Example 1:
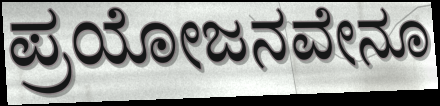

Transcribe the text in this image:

ಪ್ರಯೋಜನವೇನೂ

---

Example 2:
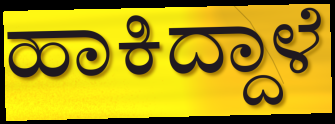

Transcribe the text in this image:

ಹಾಕಿದ್ದಾಳೆ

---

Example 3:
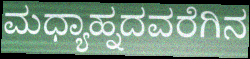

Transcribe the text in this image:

ಮಧ್ಯಾಹ್ನದವರೆಗಿನ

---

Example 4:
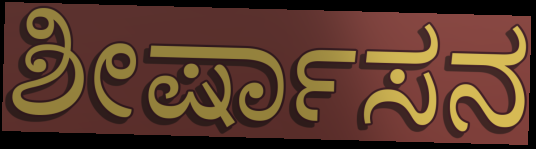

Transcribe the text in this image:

ಶೀರ್ಷಾಸನ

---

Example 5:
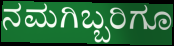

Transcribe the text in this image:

ನಮಗಿಬ್ಬರಿಗೂ